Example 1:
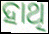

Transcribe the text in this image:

ହାଥି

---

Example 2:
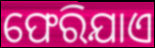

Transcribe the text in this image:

ଫେରିଯାଏ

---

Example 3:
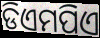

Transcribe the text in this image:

ଡିଏମପିଏ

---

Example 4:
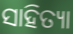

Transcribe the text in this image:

ସାହିତ୍ୟା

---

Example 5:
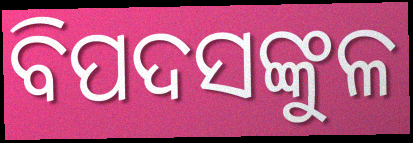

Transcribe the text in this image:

ବିପଦସଙ୍କୁଳ